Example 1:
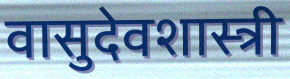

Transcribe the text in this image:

वासुदेवशास्त्री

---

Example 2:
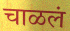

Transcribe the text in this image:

चाळलं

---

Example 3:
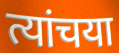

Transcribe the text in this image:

त्यांचया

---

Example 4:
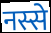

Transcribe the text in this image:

नस्से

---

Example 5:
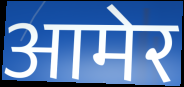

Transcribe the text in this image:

आमेर